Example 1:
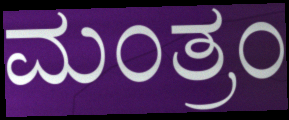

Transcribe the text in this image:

ಮಂತ್ರಂ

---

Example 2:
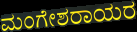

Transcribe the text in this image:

ಮಂಗೇಶರಾಯರ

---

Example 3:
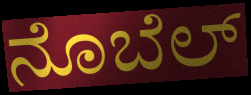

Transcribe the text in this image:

ನೊಬೆಲ್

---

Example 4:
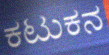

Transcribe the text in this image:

ಕಟುಕನ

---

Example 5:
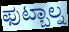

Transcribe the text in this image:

ಫುಟ್ಬಾಲ್ನ